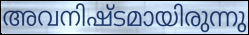
അവനിഷ്ടമായിരുന്നു